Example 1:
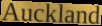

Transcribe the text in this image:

Auckland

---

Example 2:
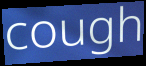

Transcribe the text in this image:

cough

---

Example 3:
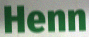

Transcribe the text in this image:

Henn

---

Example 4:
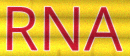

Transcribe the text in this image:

RNA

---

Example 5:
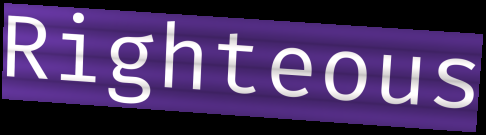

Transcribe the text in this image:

Righteous